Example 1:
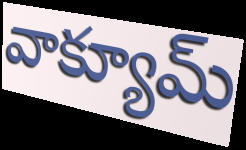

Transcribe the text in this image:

వాక్యూమ్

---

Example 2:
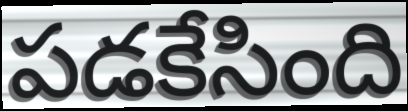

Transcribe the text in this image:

పడకేసింది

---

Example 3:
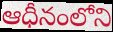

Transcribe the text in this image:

ఆధీనంలోని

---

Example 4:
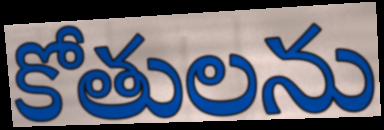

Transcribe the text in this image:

కోతులను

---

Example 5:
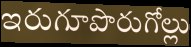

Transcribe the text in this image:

ఇరుగూపొరుగోల్లు